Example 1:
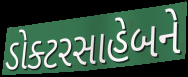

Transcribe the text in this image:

ડોક્ટરસાહેબને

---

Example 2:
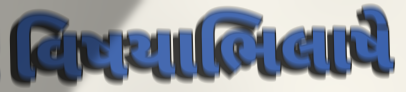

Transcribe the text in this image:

વિષયાભિલાષે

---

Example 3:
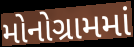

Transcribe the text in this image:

મોનોગ્રામમાં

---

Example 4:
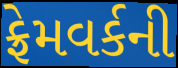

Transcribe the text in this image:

ફ્રેમવર્કની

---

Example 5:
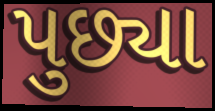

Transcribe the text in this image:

પુછ્યા